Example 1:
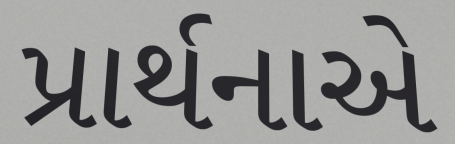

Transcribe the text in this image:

પ્રાર્થનાએ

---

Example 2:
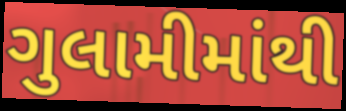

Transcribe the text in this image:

ગુલામીમાંથી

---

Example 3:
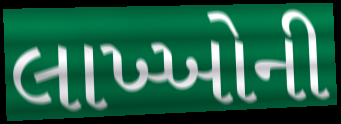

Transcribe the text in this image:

લાખ્ખોની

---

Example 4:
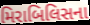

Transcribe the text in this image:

મિરાબિલિસના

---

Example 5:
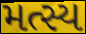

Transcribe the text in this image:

મત્સ્ય